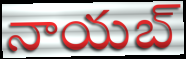
నాయబ్